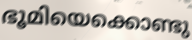
ഭൂമിയെക്കൊണ്ടു